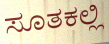
ಸೂತಕಲ್ಲಿ